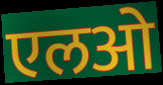
एलओ